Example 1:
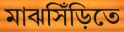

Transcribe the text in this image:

মাঝসিঁড়িতে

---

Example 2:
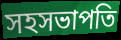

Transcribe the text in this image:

সহসভাপতি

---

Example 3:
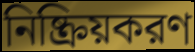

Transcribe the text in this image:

নিষ্ক্রিয়করণ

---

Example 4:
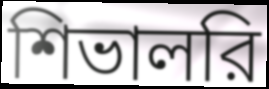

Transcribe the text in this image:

শিভালরি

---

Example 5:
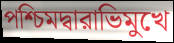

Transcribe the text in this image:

পশ্চিমদ্বারাভিমুখে